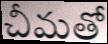
చీమతో